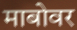
माबोवर